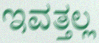
ಇವತ್ತಲ್ಲ